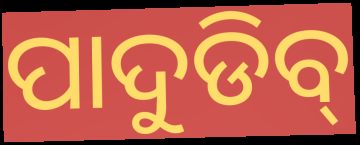
ପାଦୁଡିବ୍